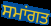
ਸਮਾਂਗਤ